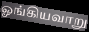
ஓங்கியவாறு